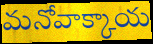
మనోవాక్కాయ